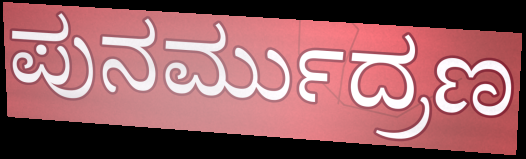
ಪುನರ್ಮುದ್ರಣ